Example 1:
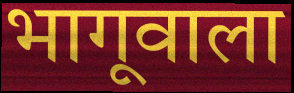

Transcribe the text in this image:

भागूवाला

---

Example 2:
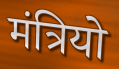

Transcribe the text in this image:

मंत्रियो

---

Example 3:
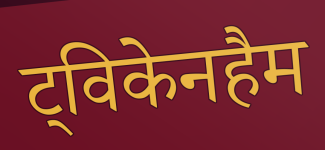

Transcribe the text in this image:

ट्विकेनहैम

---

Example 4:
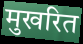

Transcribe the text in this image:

मुखरित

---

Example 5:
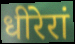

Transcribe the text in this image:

धीरेरां